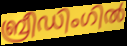
ബ്രീഡിംഗിൽ